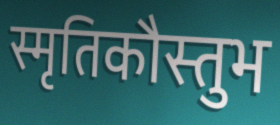
स्मृतिकौस्तुभ